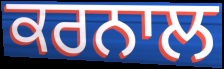
ਕਰਨਾਲ